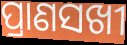
ପ୍ରାଣସଖୀ